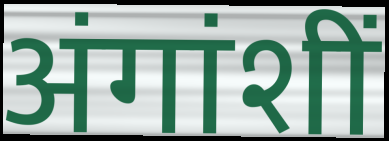
अंगांशीं